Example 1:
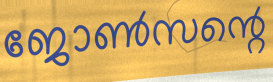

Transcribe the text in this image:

ജോൺസന്റെ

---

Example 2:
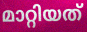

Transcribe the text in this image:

മാറ്റിയത്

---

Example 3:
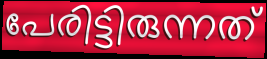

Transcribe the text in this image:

പേരിട്ടിരുന്നത്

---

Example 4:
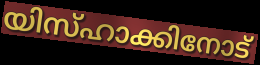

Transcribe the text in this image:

യിസ്ഹാക്കിനോട്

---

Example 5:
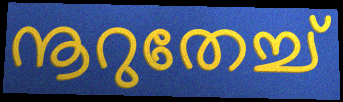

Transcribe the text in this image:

നൂറുതേച്ച്